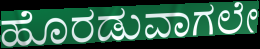
ಹೊರಡುವಾಗಲೇ